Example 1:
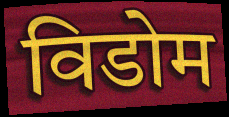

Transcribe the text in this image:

विडोम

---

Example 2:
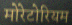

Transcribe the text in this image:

मोरेटोरियम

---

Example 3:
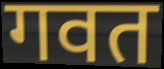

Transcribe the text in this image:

गवत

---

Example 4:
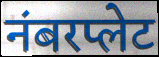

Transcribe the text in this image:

नंबरप्लेट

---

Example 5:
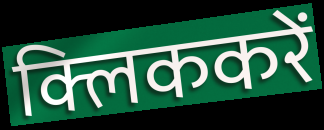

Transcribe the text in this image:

क्लिककरें